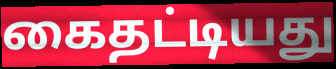
கைதட்டியது